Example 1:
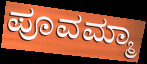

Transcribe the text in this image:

ಪೂವಮ್ಮಾ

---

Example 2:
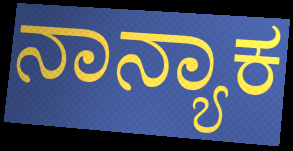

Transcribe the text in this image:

ನಾನ್ಯಾಕ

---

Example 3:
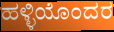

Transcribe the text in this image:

ಹಳ್ಳಿಯೊಂದರ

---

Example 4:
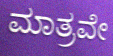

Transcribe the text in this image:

ಮಾತ್ರವೇ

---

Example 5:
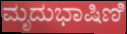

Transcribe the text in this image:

ಮೃದುಭಾಷಿಣಿ